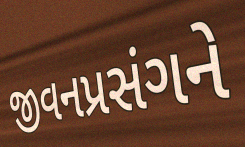
જીવનપ્રસંગને